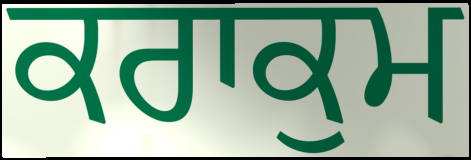
ਕਰਾਕੁਮ